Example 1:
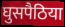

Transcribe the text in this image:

घुसपैठिया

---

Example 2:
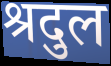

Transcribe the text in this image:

श्रदुल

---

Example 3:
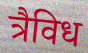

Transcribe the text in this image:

त्रैविध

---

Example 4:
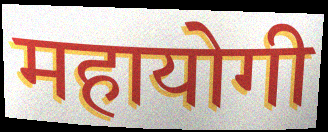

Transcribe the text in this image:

महायोगी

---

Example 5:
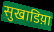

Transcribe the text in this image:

सुखाडिय़ा